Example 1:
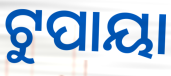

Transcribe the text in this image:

ଟୁପାୟା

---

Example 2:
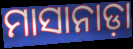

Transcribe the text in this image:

ମାସାନାଡ଼ା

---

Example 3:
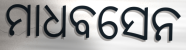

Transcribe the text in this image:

ମାଧବସେନ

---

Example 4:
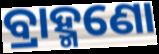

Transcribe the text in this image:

ବ୍ରାହ୍ମଣୋ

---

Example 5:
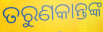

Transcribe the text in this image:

ତରୁଣକାନ୍ତଙ୍କ